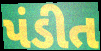
પંડીત